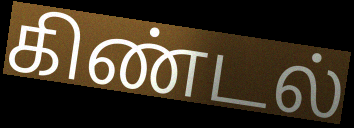
கிண்டல்